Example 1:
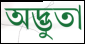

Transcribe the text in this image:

অদ্ভুতা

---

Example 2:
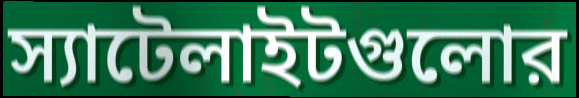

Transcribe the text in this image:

স্যাটেলাইটগুলোর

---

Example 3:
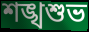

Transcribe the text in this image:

শঙ্খশুভ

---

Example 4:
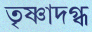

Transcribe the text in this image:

তৃষ্ণাদগ্ধ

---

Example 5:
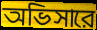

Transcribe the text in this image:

অভিসারে